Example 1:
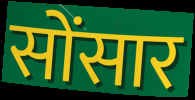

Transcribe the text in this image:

सोंसार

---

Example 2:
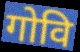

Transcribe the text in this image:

गोवि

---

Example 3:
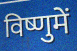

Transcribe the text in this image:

विष्णुमें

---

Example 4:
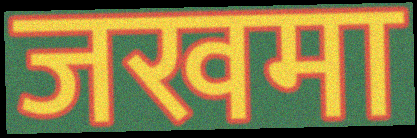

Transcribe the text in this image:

जखमा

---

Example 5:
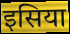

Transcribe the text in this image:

इसिया